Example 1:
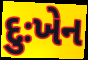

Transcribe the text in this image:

દુઃખેન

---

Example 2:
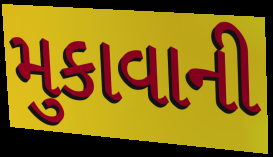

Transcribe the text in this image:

મુકાવાની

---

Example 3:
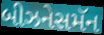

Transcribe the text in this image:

બીઝનેસમૅન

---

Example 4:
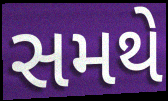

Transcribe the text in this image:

સમથે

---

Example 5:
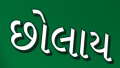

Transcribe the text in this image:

છોલાય